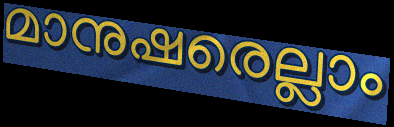
മാനുഷരെല്ലാം